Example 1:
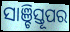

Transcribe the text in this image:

ସାଞ୍ଚିସ୍ତୂପର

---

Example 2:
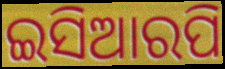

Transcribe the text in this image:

ଇସିଆରପି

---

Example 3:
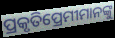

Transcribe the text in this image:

ପ୍ରକୃତିପ୍ରେମୀମାନଙ୍କୁ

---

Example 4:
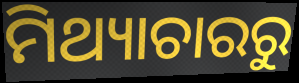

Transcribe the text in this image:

ମିଥ୍ୟାଚାରରୁ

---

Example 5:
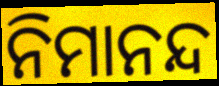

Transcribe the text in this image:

ନିମାନନ୍ଦ